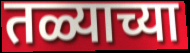
तळ्याच्या